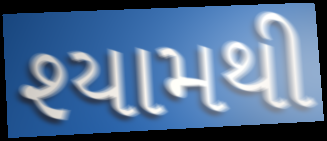
શ્યામથી